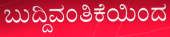
ಬುದ್ದಿವಂತಿಕೆಯಿಂದ